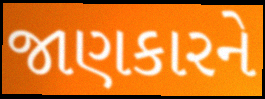
જાણકારને